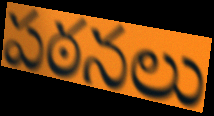
పఠనలు